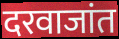
दरवाजांत